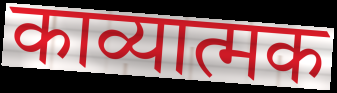
काव्यात्मक